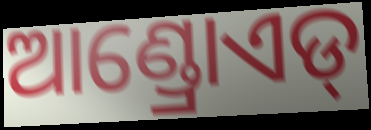
ଆଣ୍ଡ୍ରୋଏଡ୍